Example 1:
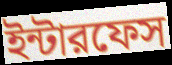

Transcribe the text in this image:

ইন্টারফেস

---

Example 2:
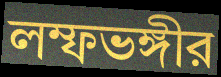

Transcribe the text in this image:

লম্ফভঙ্গীর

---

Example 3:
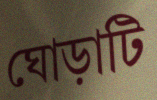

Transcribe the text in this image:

ঘোড়াটি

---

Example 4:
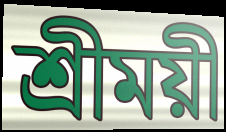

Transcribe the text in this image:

শ্রীময়ী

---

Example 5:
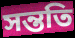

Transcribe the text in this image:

সন্ততি